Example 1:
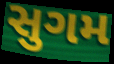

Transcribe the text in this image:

સુગમ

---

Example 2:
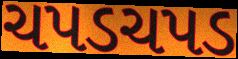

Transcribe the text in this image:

ચપડચપડ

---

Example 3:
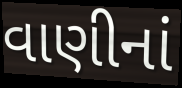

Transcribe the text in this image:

વાણીનાં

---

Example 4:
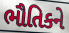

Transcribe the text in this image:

ભૌતિકને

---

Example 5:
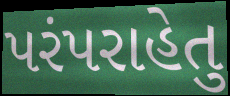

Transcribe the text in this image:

પરંપરાહેતુ